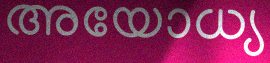
അയോധ്യ